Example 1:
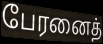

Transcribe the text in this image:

பேரனைத்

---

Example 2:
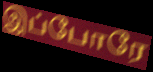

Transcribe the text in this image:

இப்போரே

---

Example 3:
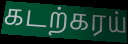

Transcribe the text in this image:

கடற்கரய்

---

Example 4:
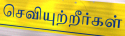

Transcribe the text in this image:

செவியுற்றீர்கள்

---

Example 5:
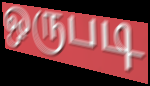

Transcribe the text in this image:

ஒருபடி